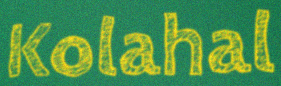
Kolahal